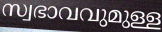
സ്വഭാവവുമുള്ള